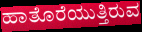
ಹಾತೊರೆಯುತ್ತಿರುವ